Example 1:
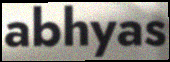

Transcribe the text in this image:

abhyas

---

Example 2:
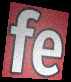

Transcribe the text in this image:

fe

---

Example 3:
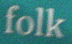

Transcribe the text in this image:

folk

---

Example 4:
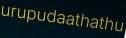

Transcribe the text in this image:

urupudaathathu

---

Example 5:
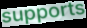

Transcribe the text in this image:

supports